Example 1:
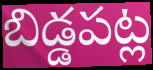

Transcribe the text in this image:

బిడ్డపట్ల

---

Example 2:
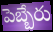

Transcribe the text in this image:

పెబ్బేరు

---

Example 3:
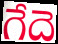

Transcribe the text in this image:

గేదె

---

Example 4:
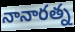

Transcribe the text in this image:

నానారత్న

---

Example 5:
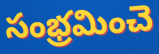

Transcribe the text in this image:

సంభ్రమించె